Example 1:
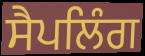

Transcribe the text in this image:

ਸੈਪਲਿੰਗ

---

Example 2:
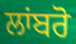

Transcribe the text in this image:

ਲਾਂਬਰੋ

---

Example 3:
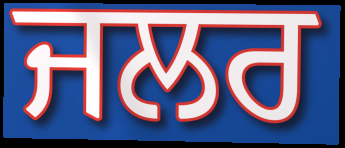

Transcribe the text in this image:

ਜਲਰ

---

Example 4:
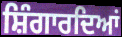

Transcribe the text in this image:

ਸ਼ਿੰਗਾਰਦਿਆਂ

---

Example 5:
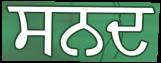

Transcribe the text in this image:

ਸਨਦ